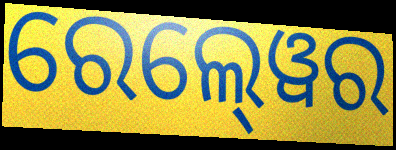
ରେଲ୍‍ୱେର